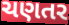
ચણતર